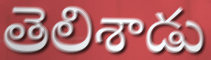
తెలిశాడు